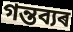
গন্তব্যৰ